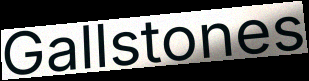
Gallstones